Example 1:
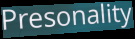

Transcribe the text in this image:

Presonality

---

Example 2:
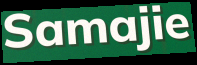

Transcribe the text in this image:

Samajie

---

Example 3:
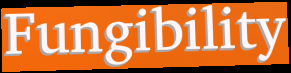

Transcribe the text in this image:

Fungibility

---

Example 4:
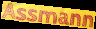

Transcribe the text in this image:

Assmann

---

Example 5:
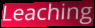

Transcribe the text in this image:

Leaching